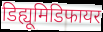
डिह्यूमिडिफायर